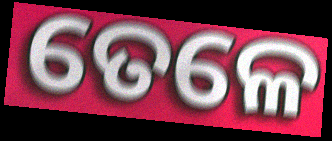
ତେଳେ